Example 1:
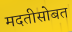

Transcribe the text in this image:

मदतीसोबत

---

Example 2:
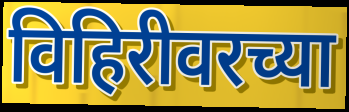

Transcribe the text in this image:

विहिरीवरच्या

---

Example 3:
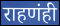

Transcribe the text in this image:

राहणंही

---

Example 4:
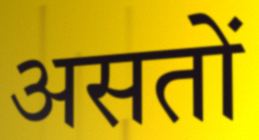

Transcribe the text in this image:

असतों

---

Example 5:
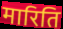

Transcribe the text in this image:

मारिति